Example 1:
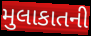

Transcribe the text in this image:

મુલાકાતની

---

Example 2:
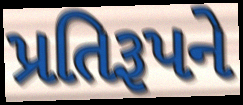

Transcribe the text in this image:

પ્રતિરૂપને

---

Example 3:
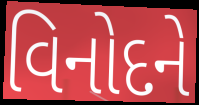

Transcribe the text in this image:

વિનોદને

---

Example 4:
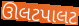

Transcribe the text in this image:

ઊલટપાલટ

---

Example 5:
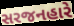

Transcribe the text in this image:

સરજનહારે